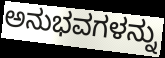
ಅನುಭವಗಳನ್ನು